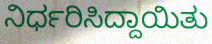
ನಿರ್ಧರಿಸಿದ್ದಾಯಿತು